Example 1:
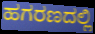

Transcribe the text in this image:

ಹಗರಣದಲ್ಲಿ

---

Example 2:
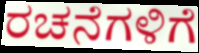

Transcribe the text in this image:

ರಚನೆಗಳಿಗೆ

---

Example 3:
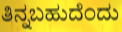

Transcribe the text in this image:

ತಿನ್ನಬಹುದೆಂದು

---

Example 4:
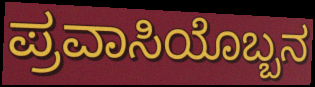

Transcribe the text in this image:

ಪ್ರವಾಸಿಯೊಬ್ಬನ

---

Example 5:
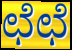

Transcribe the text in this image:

ಛೆಛೆ